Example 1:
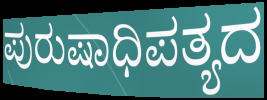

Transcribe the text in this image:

ಪುರುಷಾಧಿಪತ್ಯದ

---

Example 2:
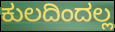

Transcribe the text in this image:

ಕುಲದಿಂದಲ್ಲ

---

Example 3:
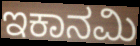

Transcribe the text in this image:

ಇಕಾನಮಿ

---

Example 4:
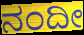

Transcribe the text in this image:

ನಂದೀ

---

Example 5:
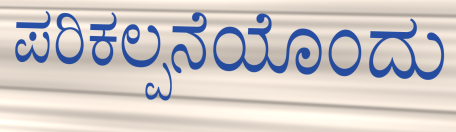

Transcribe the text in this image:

ಪರಿಕಲ್ಪನೆಯೊಂದು